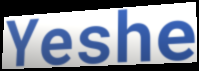
Yeshe